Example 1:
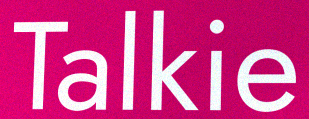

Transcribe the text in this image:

Talkie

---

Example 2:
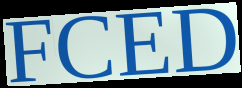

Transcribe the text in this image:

FCED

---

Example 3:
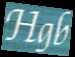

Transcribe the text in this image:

Hgb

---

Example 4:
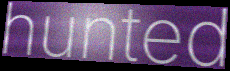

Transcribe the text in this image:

hunted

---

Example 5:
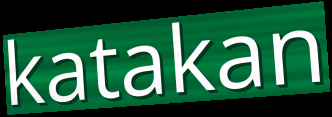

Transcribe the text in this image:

katakan